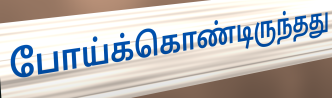
போய்க்கொண்டிருந்தது